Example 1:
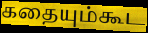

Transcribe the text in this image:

கதையும்கூட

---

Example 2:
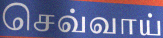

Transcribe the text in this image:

செவ்வாய்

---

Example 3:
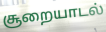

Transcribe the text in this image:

சூறையாடல்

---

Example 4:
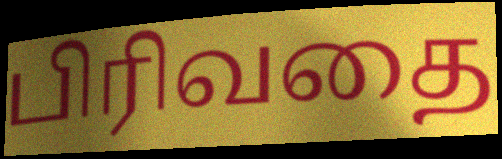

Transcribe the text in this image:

பிரிவதை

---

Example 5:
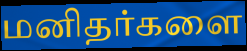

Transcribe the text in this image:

மனிதர்களை